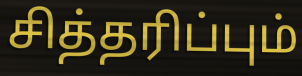
சித்தரிப்பும்